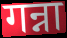
गन्ना